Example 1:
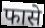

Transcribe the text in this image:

फासे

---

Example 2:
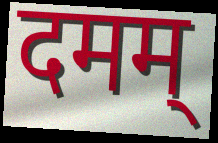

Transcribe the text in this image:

दमम्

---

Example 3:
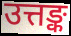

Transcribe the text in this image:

उत्तङ्क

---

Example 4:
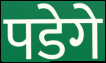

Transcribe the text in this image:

पडेगे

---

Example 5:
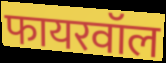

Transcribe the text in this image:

फायरवॉल